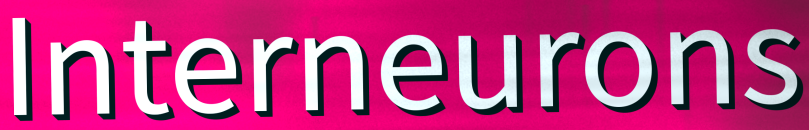
Interneurons